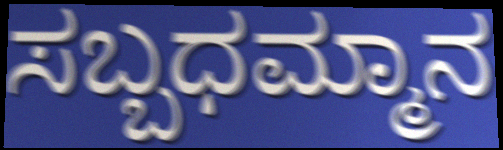
ಸಬ್ಬಧಮ್ಮಾನ